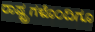
ರಾಷ್ಟ್ರಗಳೊಂದಿಗೂ